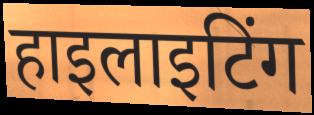
हाइलाइटिंग